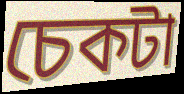
চেকটা